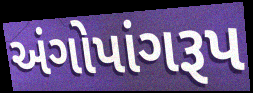
અંગોપાંગરૂપ